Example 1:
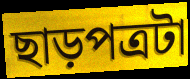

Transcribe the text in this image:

ছাড়পত্রটা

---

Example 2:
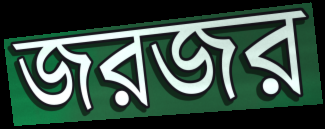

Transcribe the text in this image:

জরজর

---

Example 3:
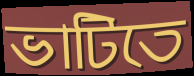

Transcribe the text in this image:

ভাটিতে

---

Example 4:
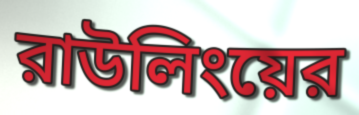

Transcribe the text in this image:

রাউলিংয়ের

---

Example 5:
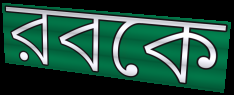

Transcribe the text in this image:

রবকে